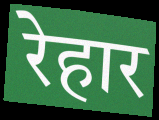
रेहार